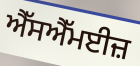
ਐੱਸਐੱਮਈਜ਼